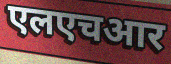
एलएचआर